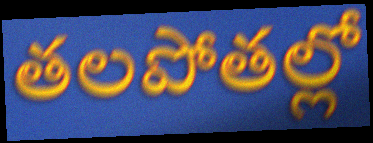
తలపోతల్లో